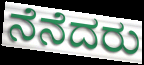
ನೆನೆದರು